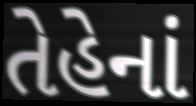
તેહેનાં